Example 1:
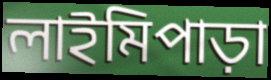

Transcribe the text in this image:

লাইমিপাড়া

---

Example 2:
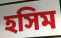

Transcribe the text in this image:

হসিম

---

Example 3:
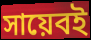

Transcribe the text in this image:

সায়েবই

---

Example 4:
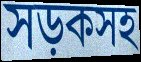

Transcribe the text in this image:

সড়কসহ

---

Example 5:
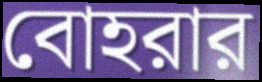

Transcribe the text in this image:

বোহরার